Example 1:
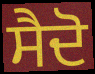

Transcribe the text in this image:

ਸੈਦੋ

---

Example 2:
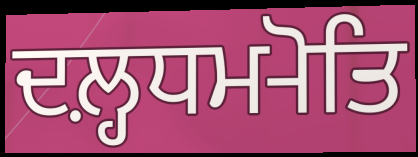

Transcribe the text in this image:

ਦਲ਼੍ਹਧਮ੍ਮੋਤਿ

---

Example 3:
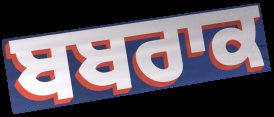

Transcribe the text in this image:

ਬਬਰਾਕ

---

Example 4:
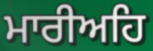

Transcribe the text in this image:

ਮਾਰੀਅਹਿ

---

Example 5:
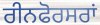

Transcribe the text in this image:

ਰੀਨਫੋਰਸਰਾਂ